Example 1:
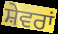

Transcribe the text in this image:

ਸ਼ੇਵਰਾਂ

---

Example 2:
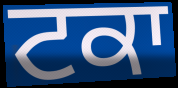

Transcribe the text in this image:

ਟਕਾ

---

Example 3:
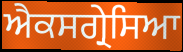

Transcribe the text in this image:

ਐਕਸਗ੍ਰੇਸਿਆ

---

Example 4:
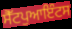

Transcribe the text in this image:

ਸੈੱਟਪੁਆਇੰਟਸ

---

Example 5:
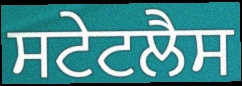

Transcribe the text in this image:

ਸਟੇਟਲੈਸ